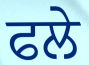
ਫਲੇ